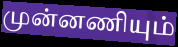
முன்னணியும்